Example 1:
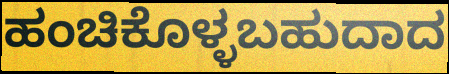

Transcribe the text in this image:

ಹಂಚಿಕೊಳ್ಳಬಹುದಾದ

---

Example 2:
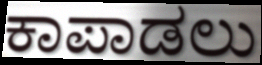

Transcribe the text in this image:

ಕಾಪಾಡಲು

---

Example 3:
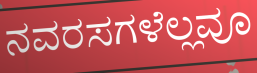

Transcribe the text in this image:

ನವರಸಗಳೆಲ್ಲವೂ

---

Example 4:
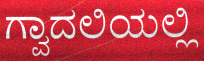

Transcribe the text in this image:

ಗ್ವಾದಲಿಯಲ್ಲಿ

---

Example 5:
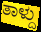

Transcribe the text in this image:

ತಾಳ್ದು